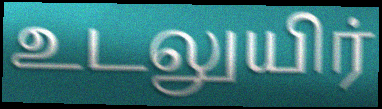
உடலுயிர்